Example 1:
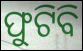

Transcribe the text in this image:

ଫୁଟିବି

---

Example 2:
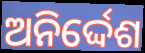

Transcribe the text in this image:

ଅନିର୍ଦ୍ଦେଶ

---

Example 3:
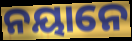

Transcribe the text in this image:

ନୟାନେ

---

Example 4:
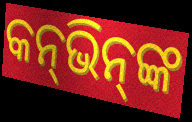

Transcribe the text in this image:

କନ୍‌ଭିନ୍‌ଙ୍କ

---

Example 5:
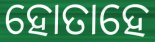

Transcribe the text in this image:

ହୋତାହେ